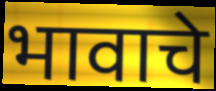
भावाचे